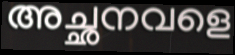
അച്ഛനവളെ